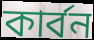
কার্বন